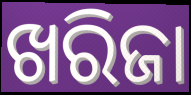
ଖରିଜା